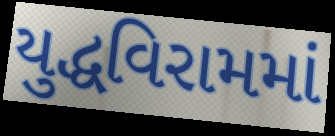
યુદ્ધવિરામમાં